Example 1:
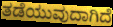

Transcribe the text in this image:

ತಡೆಯುವುದಾಗಿದೆ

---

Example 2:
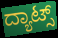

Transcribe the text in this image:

ದ್ಯಾಟ್ಸ್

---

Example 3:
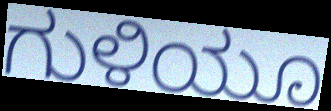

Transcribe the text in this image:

ಗುಳಿಯೂ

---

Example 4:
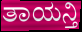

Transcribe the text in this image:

ತಾಯನ್ತಿ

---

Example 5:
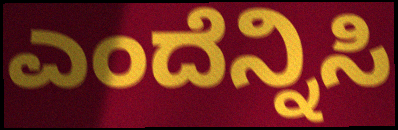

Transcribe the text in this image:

ಎಂದೆನ್ನಿಸಿ